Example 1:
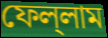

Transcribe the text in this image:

ফেল্‌লাম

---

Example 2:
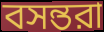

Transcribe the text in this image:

বসন্তরা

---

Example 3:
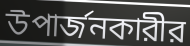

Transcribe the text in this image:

উপার্জনকারীর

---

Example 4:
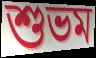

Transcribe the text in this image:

শুভম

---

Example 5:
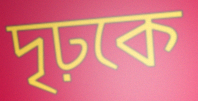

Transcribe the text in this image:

দৃঢ়কে